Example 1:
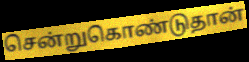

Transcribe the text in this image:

சென்றுகொண்டுதான்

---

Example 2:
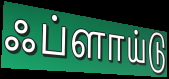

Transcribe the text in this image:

ஃப்ளாய்டு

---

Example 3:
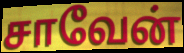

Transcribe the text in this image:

சாவேன்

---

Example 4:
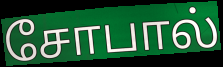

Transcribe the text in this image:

சோபால்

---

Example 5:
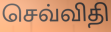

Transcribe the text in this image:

செவ்விதி